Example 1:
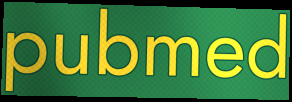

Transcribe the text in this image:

pubmed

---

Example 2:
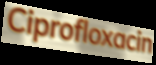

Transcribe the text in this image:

Ciprofloxacin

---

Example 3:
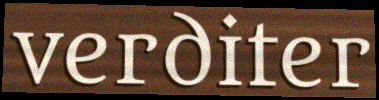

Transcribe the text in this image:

verditer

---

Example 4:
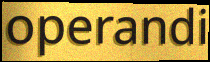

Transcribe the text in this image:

operandi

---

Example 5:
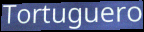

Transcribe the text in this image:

Tortuguero